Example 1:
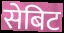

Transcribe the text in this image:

सेबिट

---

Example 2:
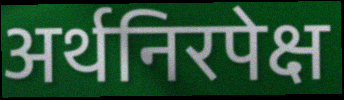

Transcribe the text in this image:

अर्थनिरपेक्ष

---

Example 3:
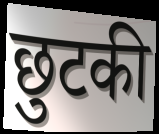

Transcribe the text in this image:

छुटकी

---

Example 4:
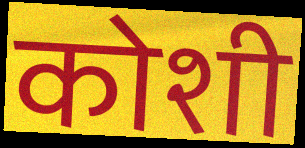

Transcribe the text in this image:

कोशी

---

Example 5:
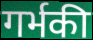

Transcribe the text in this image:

गर्भकी